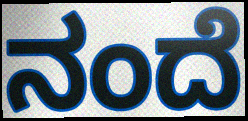
ನಂದೆ